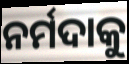
ନର୍ମଦାକୁ